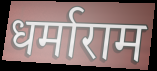
धर्माराम